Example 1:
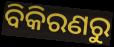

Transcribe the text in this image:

ବିକିରଣରୁ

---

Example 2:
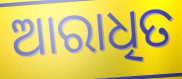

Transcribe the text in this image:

ଆରାଧିତ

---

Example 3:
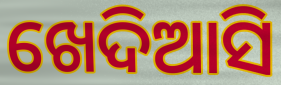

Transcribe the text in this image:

ଖେଦିଆସି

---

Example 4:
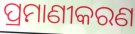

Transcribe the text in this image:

ପ୍ରମାଣୀକରଣ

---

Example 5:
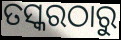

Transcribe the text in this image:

ତସ୍କରଠାରୁ